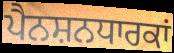
ਪੈਨਸ਼ਨਧਾਰਕਾਂ